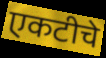
एकटीचे